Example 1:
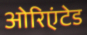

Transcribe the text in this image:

ओरिएंटेड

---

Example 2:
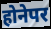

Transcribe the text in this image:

होनेपर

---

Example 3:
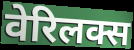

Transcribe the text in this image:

वेरिलक्स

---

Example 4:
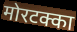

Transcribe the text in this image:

मोरटक्का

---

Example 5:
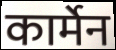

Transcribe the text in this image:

कार्मेन